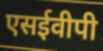
एसईवीपी